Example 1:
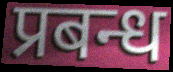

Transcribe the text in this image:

प्रबन्ध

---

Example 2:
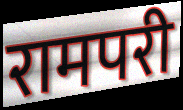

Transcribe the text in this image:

रामपरी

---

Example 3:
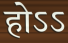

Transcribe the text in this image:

होऽऽ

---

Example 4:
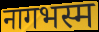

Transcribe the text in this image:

नागभस्म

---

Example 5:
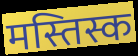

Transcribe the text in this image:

मस्तिस्क